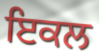
ਇਕਲ